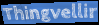
Thingvellir